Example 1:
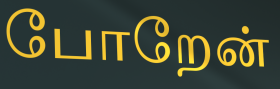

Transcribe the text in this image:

போறேன்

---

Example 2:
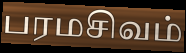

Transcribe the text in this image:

பரமசிவம்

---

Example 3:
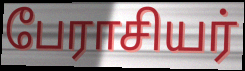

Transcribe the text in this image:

பேராசியர்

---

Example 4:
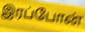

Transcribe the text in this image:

இரப்போன்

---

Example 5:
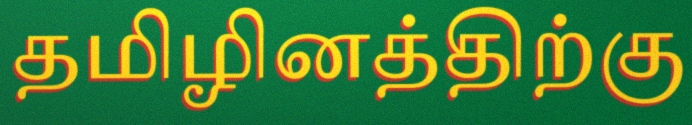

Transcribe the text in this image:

தமிழினத்திற்கு